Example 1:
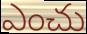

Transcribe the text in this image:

ఎంచు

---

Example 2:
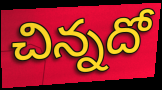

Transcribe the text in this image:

చిన్నదో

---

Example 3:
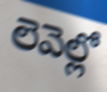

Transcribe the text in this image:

లెవెల్లో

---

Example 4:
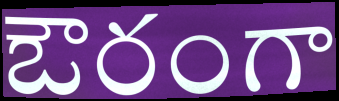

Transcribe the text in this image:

ఔరంగా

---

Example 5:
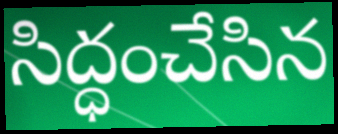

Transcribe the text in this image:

సిద్ధంచేసిన